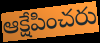
ఆక్షేపించరు